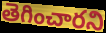
తెగించారని